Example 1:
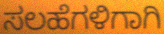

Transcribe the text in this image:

ಸಲಹೆಗಳಿಗಾಗಿ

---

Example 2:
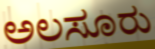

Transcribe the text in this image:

ಅಲಸೂರು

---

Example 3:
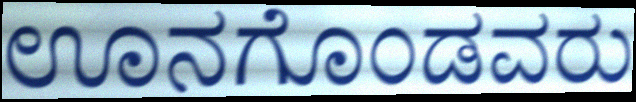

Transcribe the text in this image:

ಊನಗೊಂಡವರು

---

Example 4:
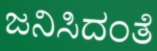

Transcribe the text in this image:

ಜನಿಸಿದಂತೆ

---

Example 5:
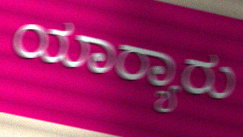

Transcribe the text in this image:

ಯಾರ‍್ಯಾರು